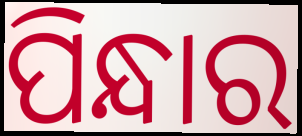
ପିନ୍ଧାର